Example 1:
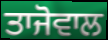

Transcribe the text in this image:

ਤਾਜੋਵਾਲ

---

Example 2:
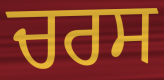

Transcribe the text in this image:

ਚਰਸ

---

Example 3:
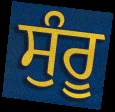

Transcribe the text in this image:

ਸੁੰਰੂ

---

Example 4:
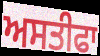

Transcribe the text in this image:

ਅਸਤੀਫਾ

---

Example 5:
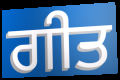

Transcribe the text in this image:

ਗੀਤ